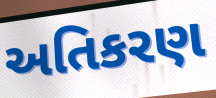
અતિકરણ